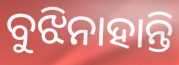
ବୁଝିନାହାନ୍ତି